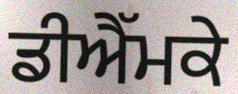
ਡੀਐੱਮਕੇ